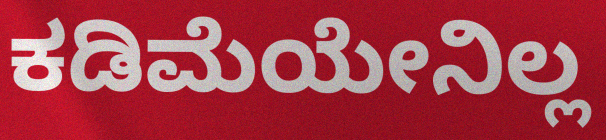
ಕಡಿಮೆಯೇನಿಲ್ಲ